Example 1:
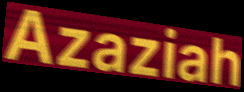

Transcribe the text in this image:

Azaziah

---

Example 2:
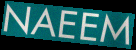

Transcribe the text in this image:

NAEEM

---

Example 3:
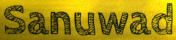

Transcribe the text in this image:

Sanuwad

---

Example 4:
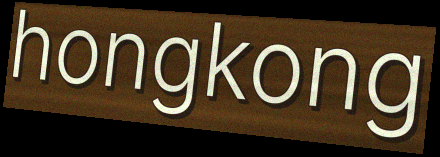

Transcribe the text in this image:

hongkong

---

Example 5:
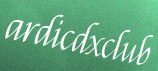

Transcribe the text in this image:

ardicdxclub